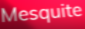
Mesquite